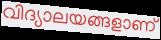
വിദ്യാലയങ്ങളാണ്